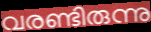
വരണ്ടിരുന്നു